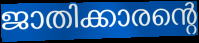
ജാതിക്കാരന്റെ